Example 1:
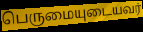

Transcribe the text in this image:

பெருமையுடையவர்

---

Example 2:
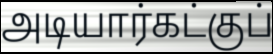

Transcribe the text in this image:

அடியார்கட்குப்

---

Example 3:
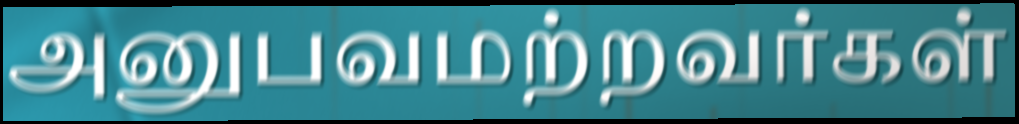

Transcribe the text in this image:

அனுபவமற்றவர்கள்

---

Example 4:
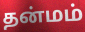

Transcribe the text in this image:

தன்மம்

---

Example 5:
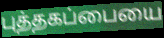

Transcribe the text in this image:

புத்தகப்பையை